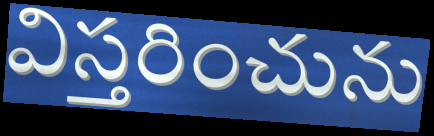
విస్తరించును